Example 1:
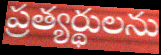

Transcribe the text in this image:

ప్రత్యర్థులను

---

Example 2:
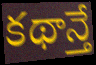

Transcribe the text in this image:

కథాన్తే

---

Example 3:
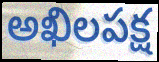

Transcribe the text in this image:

అఖిలపక్ష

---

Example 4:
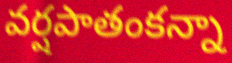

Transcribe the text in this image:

వర్షపాతంకన్నా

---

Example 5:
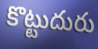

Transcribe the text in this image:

కొట్టుదురు